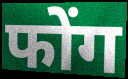
फोंग